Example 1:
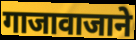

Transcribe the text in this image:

गाजावाजाने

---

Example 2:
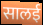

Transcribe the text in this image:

सालई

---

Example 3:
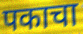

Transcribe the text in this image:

पकाचा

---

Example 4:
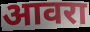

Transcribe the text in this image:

आवरा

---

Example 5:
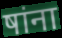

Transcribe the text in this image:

षांना